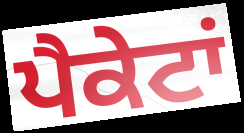
ਪੈਕੇਟਾਂ